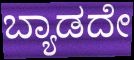
ಬ್ಯಾಡದೇ